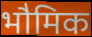
भौमिक